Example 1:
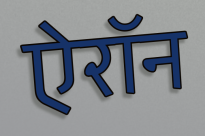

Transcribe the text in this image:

ऐरॉन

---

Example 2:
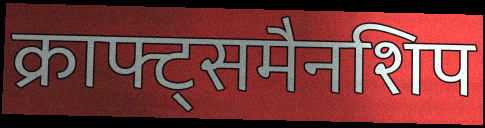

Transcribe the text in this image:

क्राफ्ट्समैनशिप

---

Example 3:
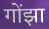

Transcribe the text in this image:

गोंझा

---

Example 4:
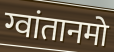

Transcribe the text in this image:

ग्वांतानमो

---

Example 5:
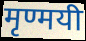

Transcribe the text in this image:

मृण्मयी